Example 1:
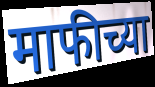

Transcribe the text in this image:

माफीच्या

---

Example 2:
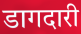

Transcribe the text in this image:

डागदारी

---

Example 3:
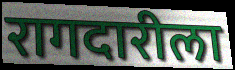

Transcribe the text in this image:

रागदारीला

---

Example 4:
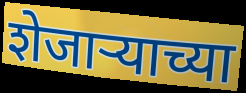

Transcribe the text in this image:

शेजार्‍याच्या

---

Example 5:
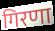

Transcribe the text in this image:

गिरणा